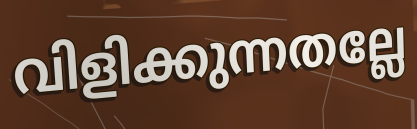
വിളിക്കുന്നതല്ലേ